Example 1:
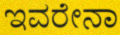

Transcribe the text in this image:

ಇವರೇನಾ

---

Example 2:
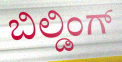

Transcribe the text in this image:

ಬಿಲ್ಡಿಂಗ್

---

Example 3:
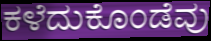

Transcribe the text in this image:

ಕಳೆದುಕೊಂಡೆವು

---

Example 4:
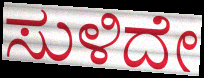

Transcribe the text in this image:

ಸುಳಿದೇ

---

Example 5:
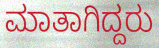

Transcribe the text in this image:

ಮಾತಾಗಿದ್ದರು